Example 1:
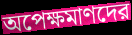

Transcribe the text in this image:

অপেক্ষমাণদের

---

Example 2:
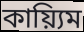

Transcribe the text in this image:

কায়্যিম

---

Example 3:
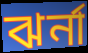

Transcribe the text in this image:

ঝর্না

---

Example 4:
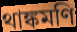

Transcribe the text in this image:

থাঙ্কমণি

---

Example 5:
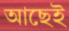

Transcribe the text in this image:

আছেই